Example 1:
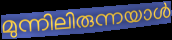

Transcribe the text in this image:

മുന്നിലിരുന്നയാൾ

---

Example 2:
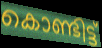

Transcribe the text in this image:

കൊണ്ടിട്ട്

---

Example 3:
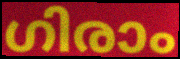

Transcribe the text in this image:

ഗിരാം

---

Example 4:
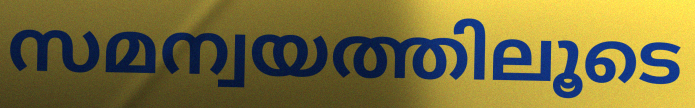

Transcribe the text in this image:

സമന്വയത്തിലൂടെ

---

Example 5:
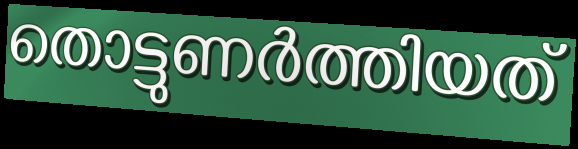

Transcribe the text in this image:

തൊട്ടുണർത്തിയത്